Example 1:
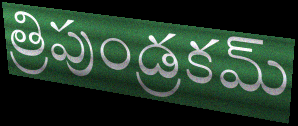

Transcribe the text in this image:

త్రిపుండ్రకమ్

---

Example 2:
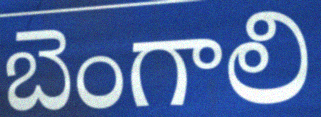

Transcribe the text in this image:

బెంగాలి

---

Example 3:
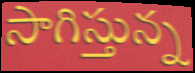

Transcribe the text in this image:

సాగిస్తున్న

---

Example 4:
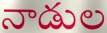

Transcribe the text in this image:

నాడుల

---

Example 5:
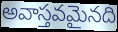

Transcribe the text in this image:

అవాస్తవమైనది